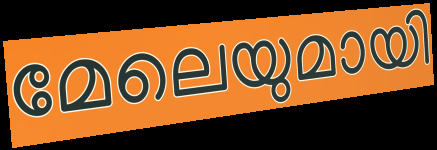
മേലെയുമായി